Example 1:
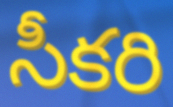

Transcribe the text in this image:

సీకరి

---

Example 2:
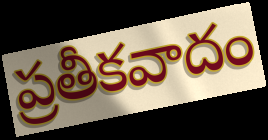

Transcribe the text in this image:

ప్రతీకవాదం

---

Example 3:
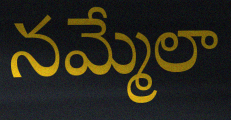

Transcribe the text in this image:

నమ్మేలా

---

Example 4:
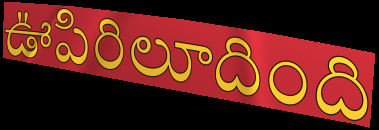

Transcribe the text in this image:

ఊపిరిలూదింది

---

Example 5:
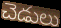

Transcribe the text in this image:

చెడులు